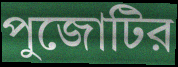
পুজোটির